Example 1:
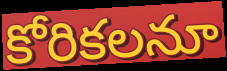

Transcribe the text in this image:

కోరికలనూ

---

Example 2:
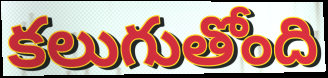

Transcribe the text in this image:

కలుగుతోంది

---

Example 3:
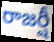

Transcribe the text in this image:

రాజర్షీ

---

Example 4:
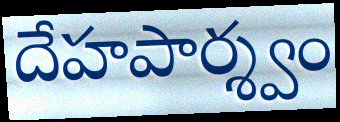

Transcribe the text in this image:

దేహపార్శ్వం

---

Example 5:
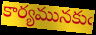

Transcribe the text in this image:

కార్యమునకుఁ